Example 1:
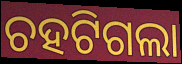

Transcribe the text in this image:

ଚହଟିଗଲା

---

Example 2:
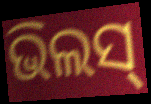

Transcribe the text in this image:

ଭିଲସ୍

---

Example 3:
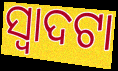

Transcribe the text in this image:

ସ୍ଵାଦଟା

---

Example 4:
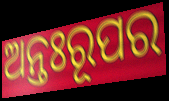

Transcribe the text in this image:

ଅନ୍ତଃରୂପର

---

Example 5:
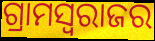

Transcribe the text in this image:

ଗ୍ରାମସ୍ୱରାଜର